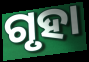
ଗୃହା